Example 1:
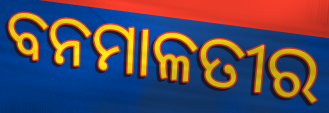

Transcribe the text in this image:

ବନମାଳତୀର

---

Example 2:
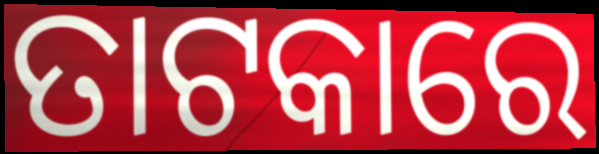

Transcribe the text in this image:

ତାଟକାରେ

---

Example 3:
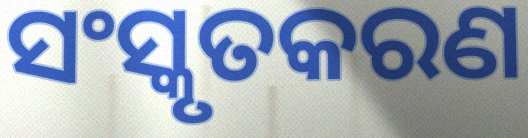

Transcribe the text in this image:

ସଂସ୍କୃତକରଣ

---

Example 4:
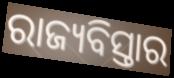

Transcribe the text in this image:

ରାଜ୍ୟବିସ୍ତାର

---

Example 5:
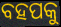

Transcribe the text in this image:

ବହପକୁ